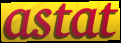
astat